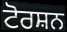
ਟੋਰਸ਼ਨ